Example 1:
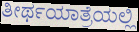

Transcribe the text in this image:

ತೀರ್ಥಯಾತ್ರೆಯಲ್ಲಿ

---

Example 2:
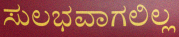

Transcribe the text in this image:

ಸುಲಭವಾಗಲಿಲ್ಲ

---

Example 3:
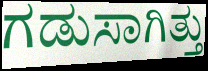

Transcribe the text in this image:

ಗಡುಸಾಗಿತ್ತು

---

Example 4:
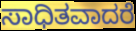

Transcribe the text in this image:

ಸಾಧಿತವಾದರೆ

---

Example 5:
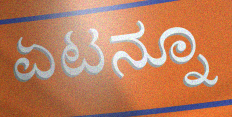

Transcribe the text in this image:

ಏಟನ್ನೂ